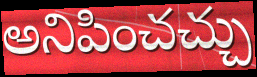
అనిపించచ్చు